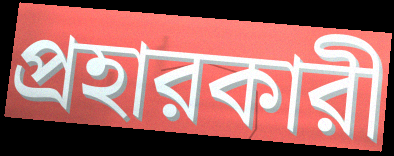
প্রহারকারী